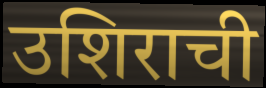
उशिराची